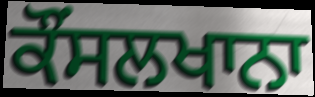
ਕੌਂਸਲਖਾਨਾ